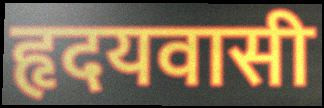
हृदयवासी